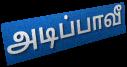
அடிப்பாவீ